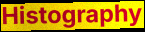
Histography